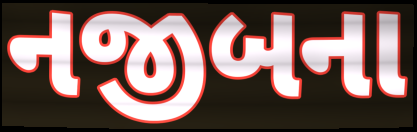
નજીબના